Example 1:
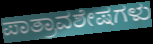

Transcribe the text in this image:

ಪಾತ್ರಾವಶೇಷಗಳು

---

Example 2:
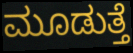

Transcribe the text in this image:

ಮೂಡುತ್ತೆ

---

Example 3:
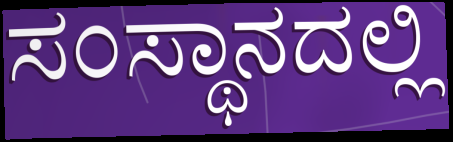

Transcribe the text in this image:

ಸಂಸ್ಥಾನದಲ್ಲಿ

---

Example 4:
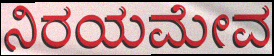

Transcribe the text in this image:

ನಿರಯಮೇವ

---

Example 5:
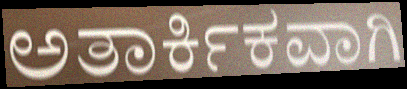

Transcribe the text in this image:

ಅತಾರ್ಕಿಕವಾಗಿ